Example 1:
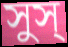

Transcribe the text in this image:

সুস্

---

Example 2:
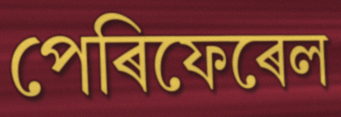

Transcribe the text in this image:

পেৰিফেৰেল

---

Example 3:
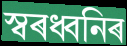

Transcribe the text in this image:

স্বৰধ্বনিৰ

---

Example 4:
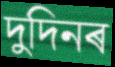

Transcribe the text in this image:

দুদিনৰ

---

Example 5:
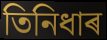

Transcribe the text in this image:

তিনিধাৰ